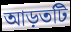
আড়তটি